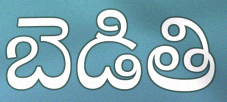
బెడితి